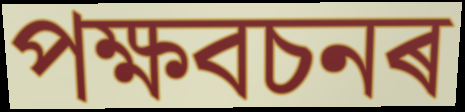
পক্ষবচনৰ